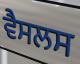
ਵੈਸਲਸ